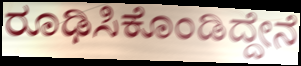
ರೂಢಿಸಿಕೊಂಡಿದ್ದೇನೆ